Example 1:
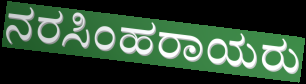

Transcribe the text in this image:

ನರಸಿಂಹರಾಯರು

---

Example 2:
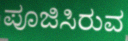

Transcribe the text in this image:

ಪೂಜಿಸಿರುವ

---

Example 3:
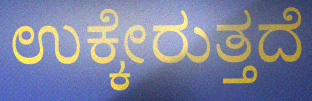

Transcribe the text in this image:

ಉಕ್ಕೇರುತ್ತದೆ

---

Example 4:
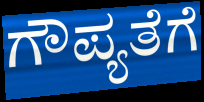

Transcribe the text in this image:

ಗೌಪ್ಯತೆಗೆ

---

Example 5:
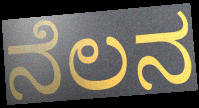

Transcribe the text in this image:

ನೆಲನ